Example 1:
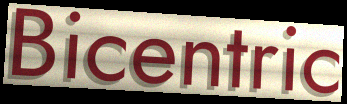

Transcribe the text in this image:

Bicentric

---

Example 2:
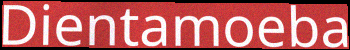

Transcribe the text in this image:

Dientamoeba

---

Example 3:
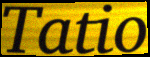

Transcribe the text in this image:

Tatio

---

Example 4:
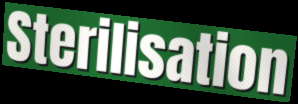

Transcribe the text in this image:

Sterilisation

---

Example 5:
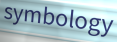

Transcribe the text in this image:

symbology